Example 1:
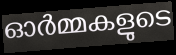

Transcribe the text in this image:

ഓർമ്മകളുടെ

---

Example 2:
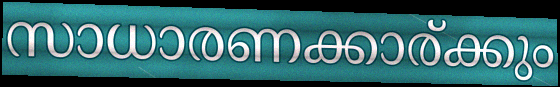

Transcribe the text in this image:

സാധാരണക്കാര്ക്കും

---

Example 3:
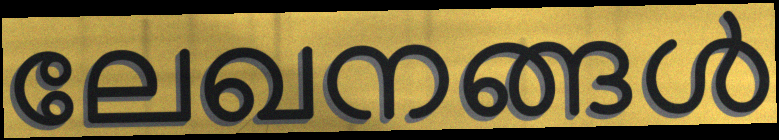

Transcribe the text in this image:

ലേഖനങ്ങൾ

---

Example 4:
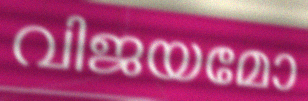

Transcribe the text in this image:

വിജയമോ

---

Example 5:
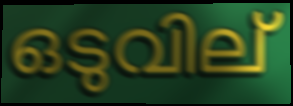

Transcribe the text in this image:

ഒടുവില്